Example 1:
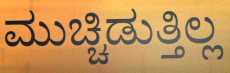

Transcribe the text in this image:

ಮುಚ್ಚಿಡುತ್ತಿಲ್ಲ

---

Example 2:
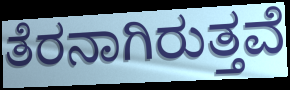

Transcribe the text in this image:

ತೆರನಾಗಿರುತ್ತವೆ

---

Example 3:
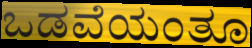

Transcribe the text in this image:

ಒಡವೆಯಂತೂ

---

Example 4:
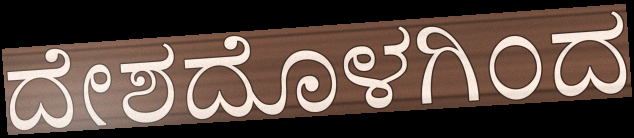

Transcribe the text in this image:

ದೇಶದೊಳಗಿಂದ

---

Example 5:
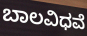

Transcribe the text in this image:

ಬಾಲವಿಧವೆ